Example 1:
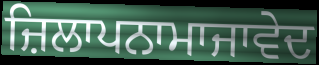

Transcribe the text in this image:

ਜ਼ਿਲਾਪਨਾਮਾਜਾਵੇਦ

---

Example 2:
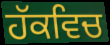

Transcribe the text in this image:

ਹੱਕਵਿਚ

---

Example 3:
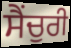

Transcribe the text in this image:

ਸੈਂਚੁਰੀ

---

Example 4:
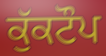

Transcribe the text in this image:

ਕੁੱਕਟੌਪ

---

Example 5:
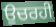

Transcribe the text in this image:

ਉਚਰਹੀ